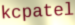
kcpatel